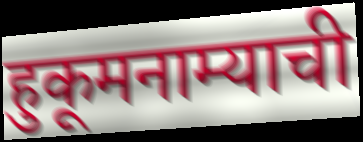
हुकूमनाम्याची